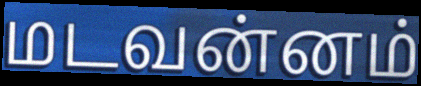
மடவன்னம்